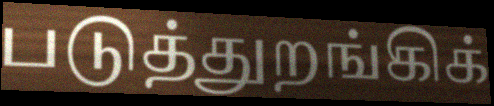
படுத்துறங்கிக்